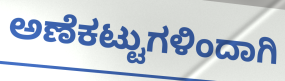
ಅಣೆಕಟ್ಟುಗಳಿಂದಾಗಿ